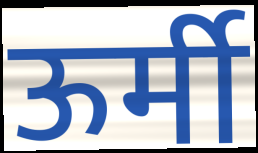
ऊर्मी